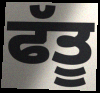
ਫੱਤੂ